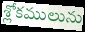
శ్లోకములును